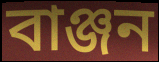
বাঞ্জন